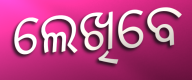
ଲେଖିବେ